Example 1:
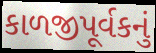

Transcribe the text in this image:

કાળજીપૂર્વકનું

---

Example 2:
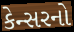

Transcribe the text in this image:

કેન્સરનો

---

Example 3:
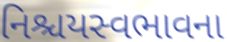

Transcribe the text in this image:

નિશ્ચયસ્વભાવના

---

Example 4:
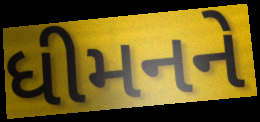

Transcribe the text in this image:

ધીમનને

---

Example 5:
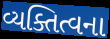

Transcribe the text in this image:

વ્યક્તિત્વના